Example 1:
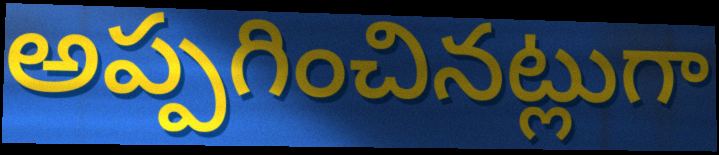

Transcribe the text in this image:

అప్పగించినట్లుగా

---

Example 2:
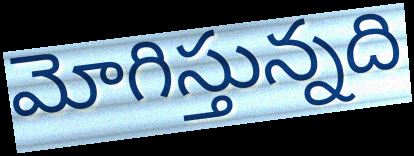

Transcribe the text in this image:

మోగిస్తున్నది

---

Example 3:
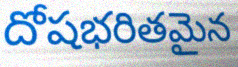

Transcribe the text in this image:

దోషభరితమైన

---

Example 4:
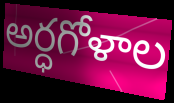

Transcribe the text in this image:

అర్ధగోళాల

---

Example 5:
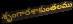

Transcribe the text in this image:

శృంగారశాకుంతలము